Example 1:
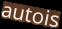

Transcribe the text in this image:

autois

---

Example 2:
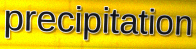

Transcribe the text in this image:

precipitation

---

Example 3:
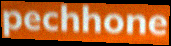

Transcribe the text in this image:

pechhone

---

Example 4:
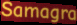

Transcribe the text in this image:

Samagra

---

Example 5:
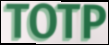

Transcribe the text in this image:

TOTP